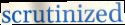
scrutinized